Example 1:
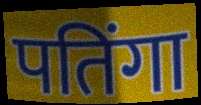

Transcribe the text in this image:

पतिंगा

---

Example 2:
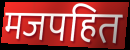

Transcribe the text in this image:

मजपहित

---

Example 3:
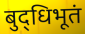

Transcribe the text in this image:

बुद्धिभूतं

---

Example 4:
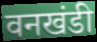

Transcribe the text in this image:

वनखंडी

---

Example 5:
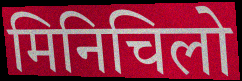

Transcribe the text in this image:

मिनिचिलो